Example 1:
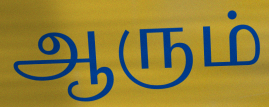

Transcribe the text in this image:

ஆரும்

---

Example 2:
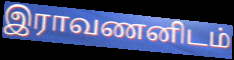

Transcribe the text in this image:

இராவணனிடம்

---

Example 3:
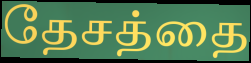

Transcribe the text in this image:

தேசத்தை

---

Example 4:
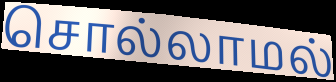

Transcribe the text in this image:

சொல்லாமல்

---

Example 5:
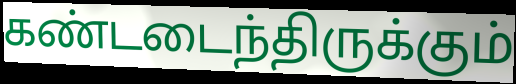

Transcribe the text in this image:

கண்டடைந்திருக்கும்